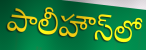
పాలీహౌస్‌లో